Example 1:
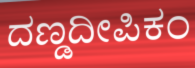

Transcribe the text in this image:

ದಣ್ಡದೀಪಿಕಂ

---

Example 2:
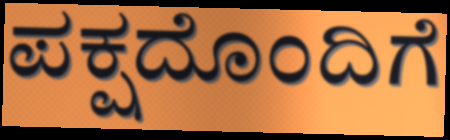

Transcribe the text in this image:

ಪಕ್ಷದೊಂದಿಗೆ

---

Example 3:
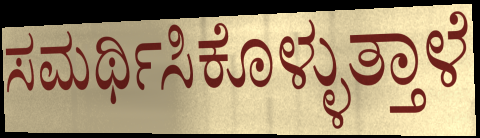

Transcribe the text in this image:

ಸಮರ್ಥಿಸಿಕೊಳ್ಳುತ್ತಾಳೆ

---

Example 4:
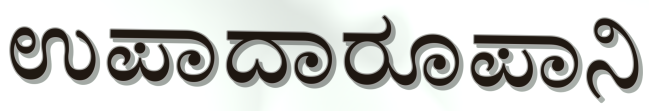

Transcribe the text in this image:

ಉಪಾದಾರೂಪಾನಿ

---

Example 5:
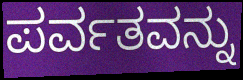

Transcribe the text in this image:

ಪರ್ವತವನ್ನು